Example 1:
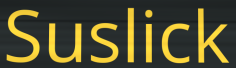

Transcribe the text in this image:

Suslick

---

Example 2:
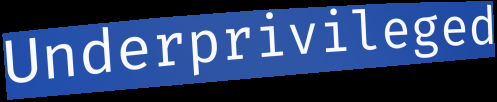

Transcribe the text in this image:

Underprivileged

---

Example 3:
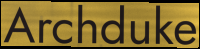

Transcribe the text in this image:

Archduke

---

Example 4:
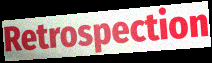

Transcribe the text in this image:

Retrospection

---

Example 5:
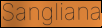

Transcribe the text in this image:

Sangliana